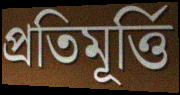
প্ৰতিমূৰ্ত্তি